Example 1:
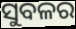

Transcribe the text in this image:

ସୁବଳର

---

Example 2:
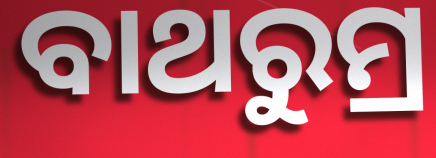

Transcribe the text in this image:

ବାଥରୁମ୍ର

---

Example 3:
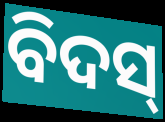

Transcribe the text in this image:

ବିଦସ୍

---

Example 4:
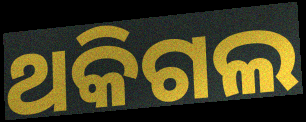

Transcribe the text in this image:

ଥକିଗଲ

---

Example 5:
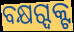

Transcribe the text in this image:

ବକ୍ଷଗ୍ଦକ୍ଟ